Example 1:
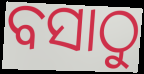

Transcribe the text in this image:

ବସାଠୁ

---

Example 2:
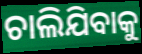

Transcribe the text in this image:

ଚାଲିଯିବାକୁ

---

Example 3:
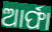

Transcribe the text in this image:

ଆର୍ଫା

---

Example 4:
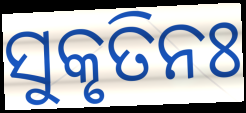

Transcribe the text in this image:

ସୁକୃତିନଃ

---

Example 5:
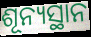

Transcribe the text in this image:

ଶୂନ୍ୟସ୍ଥାନ